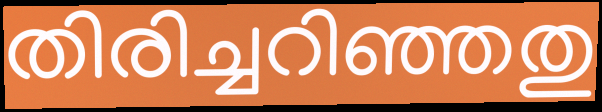
തിരിച്ചറിഞ്ഞതു